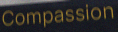
Compassion